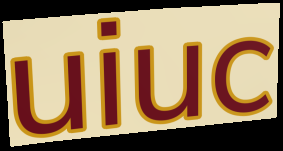
uiuc